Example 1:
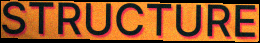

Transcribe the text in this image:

STRUCTURE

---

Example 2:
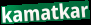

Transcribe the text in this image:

kamatkar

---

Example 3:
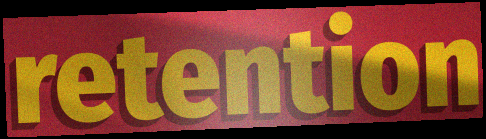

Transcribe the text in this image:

retention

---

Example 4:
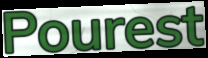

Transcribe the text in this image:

Pourest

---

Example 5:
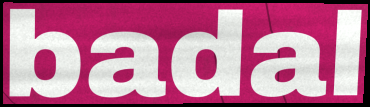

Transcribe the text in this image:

badal